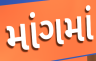
માંગમાં